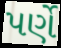
પર્ણે